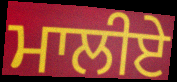
ਮਾਲੀਏ